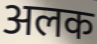
अलक